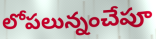
లోపలున్నంచేపూ